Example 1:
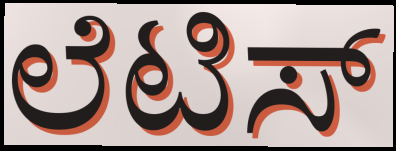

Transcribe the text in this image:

ಲೆಟಿಸ್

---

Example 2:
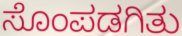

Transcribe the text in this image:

ಸೊಂಪಡಗಿತು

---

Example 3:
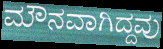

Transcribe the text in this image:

ಮೌನವಾಗಿದ್ದವು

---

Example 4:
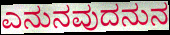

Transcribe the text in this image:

ಎನುನವುದನುನ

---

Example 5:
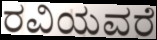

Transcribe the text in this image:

ರವಿಯವರೆ